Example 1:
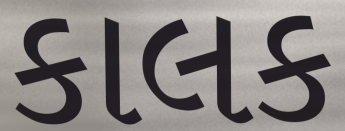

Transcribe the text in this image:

કાલક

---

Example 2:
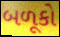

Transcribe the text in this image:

બળૂકો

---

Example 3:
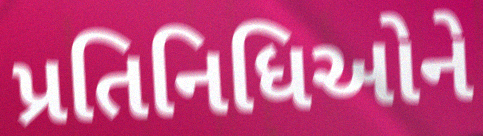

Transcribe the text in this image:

પ્રતિનિધિઓને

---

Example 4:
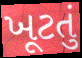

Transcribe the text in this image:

ખૂટતું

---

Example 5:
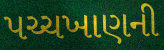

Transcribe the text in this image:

પચ્ચખાણની